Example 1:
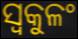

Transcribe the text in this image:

ସ୍ୱକୁଳଂ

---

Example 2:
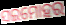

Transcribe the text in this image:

ସଇମୋହର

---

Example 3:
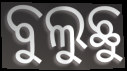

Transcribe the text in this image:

ବୁଲୁଛୁ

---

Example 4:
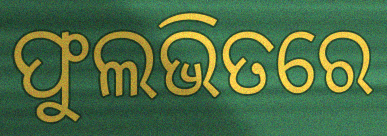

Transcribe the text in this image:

ଫୁଲଭିତରେ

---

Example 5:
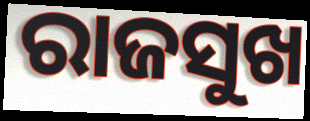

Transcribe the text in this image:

ରାଜସୁଖ